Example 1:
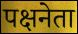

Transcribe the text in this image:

पक्षनेता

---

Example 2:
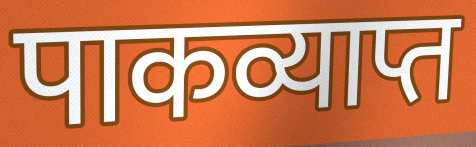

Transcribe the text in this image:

पाकव्याप्त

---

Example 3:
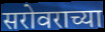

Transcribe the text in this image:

सरोवराच्या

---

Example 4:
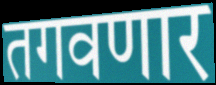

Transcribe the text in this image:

तगवणार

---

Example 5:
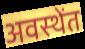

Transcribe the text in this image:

अवस्थेंत